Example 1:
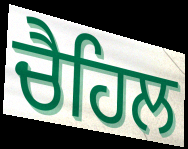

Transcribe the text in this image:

ਚੈਹਿਲ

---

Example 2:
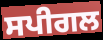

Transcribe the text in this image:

ਸਪੀਗਲ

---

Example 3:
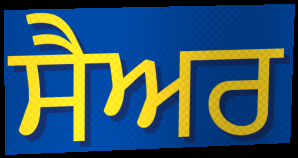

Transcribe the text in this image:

ਸੈਅਰ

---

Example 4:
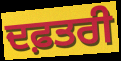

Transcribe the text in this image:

ਦਫ਼ਤਰੀ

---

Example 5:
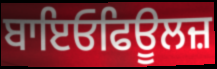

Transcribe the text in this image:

ਬਾਇਓਫਿਊਲਜ਼